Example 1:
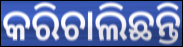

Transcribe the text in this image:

କରିଚାଲିଛନ୍ତି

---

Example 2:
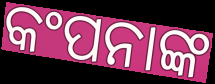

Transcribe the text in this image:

କଂପନାଙ୍କ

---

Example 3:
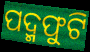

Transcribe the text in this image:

ପଦ୍ମଫୁଟି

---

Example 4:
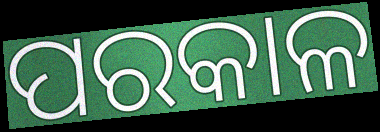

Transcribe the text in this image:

ପରକାଳ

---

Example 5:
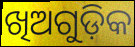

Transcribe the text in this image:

ଖିଅଗୁଡ଼ିକ